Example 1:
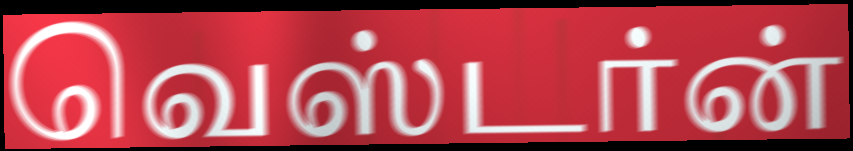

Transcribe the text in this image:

வெஸ்டர்ன்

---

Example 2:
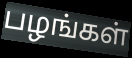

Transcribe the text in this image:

பழங்கள்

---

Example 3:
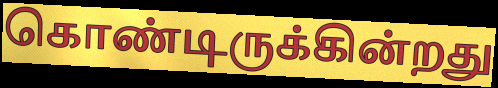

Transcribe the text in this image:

கொண்டிருக்கின்றது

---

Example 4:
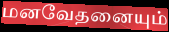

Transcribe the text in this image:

மனவேதனையும்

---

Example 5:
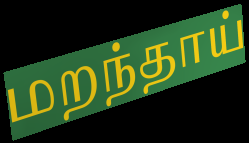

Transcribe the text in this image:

மறந்தாய்